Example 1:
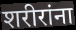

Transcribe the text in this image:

शरीरांना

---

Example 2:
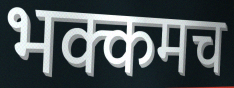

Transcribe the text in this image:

भक्कमच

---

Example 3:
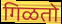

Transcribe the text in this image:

गिळतो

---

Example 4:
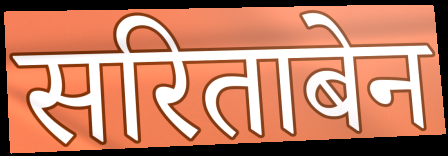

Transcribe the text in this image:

सरिताबेन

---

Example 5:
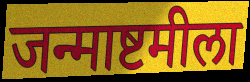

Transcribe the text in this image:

जन्माष्टमीला